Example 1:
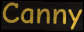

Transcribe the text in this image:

Canny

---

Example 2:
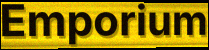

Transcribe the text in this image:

Emporium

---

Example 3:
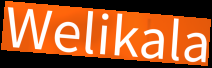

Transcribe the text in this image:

Welikala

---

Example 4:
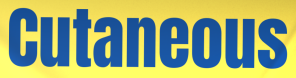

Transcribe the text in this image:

Cutaneous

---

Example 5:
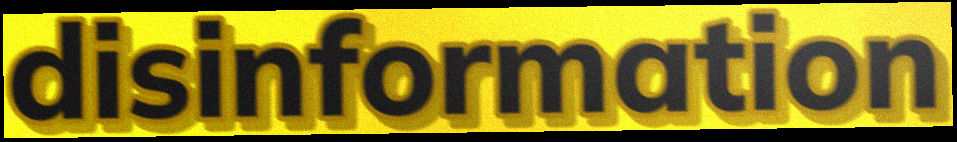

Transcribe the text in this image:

disinformation